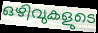
ഒഴിവുകളുടെ